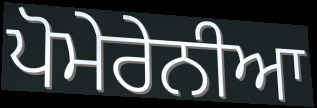
ਪੋਮੇਰੇਨੀਆ